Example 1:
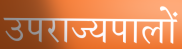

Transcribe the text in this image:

उपराज्यपालों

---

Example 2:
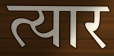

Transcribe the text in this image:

त्यार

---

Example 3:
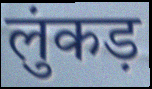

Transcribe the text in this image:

लुंकड़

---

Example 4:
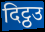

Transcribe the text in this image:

दिट्ठउ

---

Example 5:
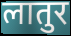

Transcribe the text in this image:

लातुर